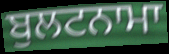
ਬੁਲਟਨਾਮਾ